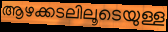
ആഴക്കടലിലൂടെയുള്ള